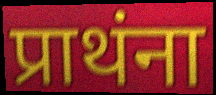
प्राथंना